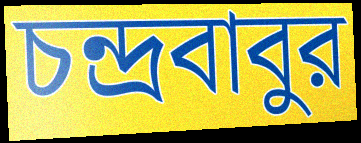
চন্দ্রবাবুর